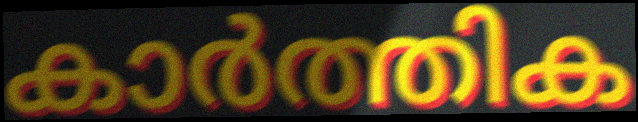
കാർത്തിക